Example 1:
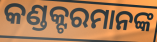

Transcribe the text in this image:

କଣ୍ଡକ୍ଟରମାନଙ୍କ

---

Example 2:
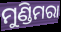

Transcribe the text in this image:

ମୁଣ୍ଡିମରା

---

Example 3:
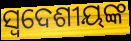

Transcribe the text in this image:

ସ୍ଵଦେଶୀୟଙ୍କ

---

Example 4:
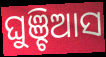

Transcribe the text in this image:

ଘୁଞ୍ଚିଆସ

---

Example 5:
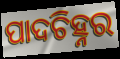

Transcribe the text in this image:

ପାଦଚିହ୍ନର